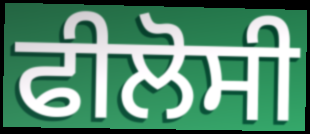
ਫੀਲੋਸੀ